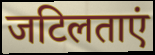
जटिलताएं